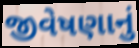
જીવેષણાનું